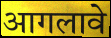
आगलावे